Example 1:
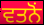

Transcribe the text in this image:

ਵਤਨੋਂ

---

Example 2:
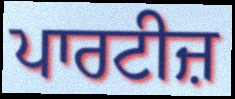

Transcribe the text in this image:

ਪਾਰਟੀਜ਼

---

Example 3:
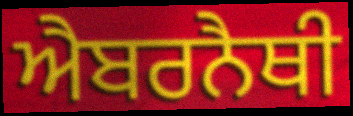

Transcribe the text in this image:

ਐਬਰਨੈਥੀ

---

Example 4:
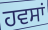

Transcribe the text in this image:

ਹਵਸਾਂ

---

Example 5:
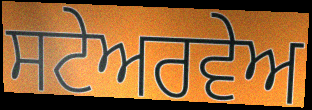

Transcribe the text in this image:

ਸਟੇਅਰਵੇਅ